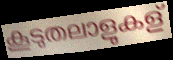
കൂടുതലാളുകള്